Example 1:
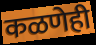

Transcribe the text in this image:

कळणेही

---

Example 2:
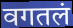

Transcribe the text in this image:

वगतलं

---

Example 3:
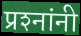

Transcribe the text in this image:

प्रश्नांनी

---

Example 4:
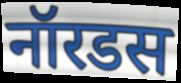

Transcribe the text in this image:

नॉरडस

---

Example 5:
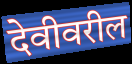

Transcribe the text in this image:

देवीवरील